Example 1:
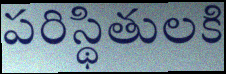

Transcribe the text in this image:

పరిస్థితులకి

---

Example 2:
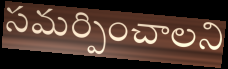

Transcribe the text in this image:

సమర్పించాలని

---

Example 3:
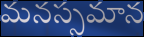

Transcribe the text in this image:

మనస్సమాన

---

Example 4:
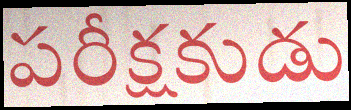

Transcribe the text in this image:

పరీక్షకుడు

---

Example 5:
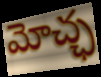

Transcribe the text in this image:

మోచ్ఛ